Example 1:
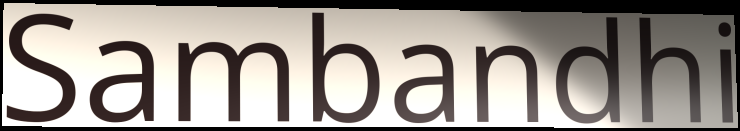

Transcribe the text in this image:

Sambandhi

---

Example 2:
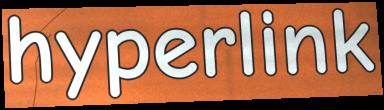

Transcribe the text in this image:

hyperlink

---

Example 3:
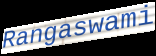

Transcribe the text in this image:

Rangaswami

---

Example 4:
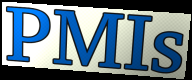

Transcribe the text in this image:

PMIs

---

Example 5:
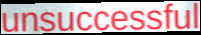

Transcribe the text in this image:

unsuccessful